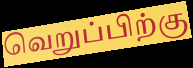
வெறுப்பிற்கு